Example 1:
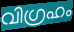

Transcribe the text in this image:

വിഗ്രഹം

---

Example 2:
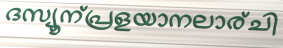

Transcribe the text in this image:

ദസ്യൂന്പ്രളയാനലാര്ചി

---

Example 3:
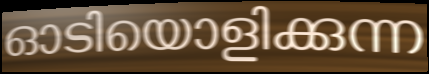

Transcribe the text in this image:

ഓടിയൊളിക്കുന്ന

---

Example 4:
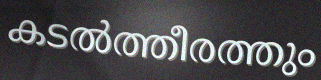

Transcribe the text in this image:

കടൽത്തീരത്തും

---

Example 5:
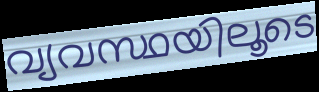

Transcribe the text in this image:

വ്യവസ്ഥയിലൂടെ